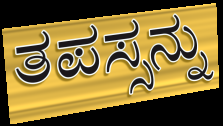
ತಪಸ್ಸನ್ನು